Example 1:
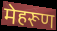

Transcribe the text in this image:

मेहरूण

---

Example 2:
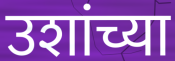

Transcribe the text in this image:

उशांच्या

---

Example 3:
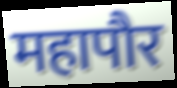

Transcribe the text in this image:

महापौर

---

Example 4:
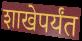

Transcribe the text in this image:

शाखेपर्यंत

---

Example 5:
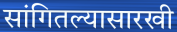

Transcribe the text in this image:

सांगितल्यासारखी